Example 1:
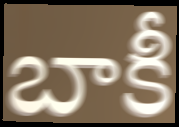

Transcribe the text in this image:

బాకీ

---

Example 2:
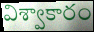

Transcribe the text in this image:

విశ్వాకారం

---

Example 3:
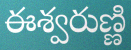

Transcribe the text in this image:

ఈశ్వరుణ్ణి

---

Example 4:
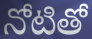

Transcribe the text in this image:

నోటితో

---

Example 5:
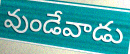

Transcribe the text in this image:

వుండేవాడు